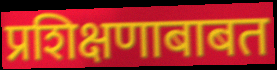
प्रशिक्षणाबाबत